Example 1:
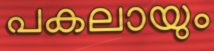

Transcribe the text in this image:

പകലായും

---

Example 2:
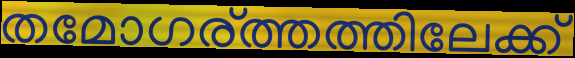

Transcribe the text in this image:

തമോഗര്ത്തത്തിലേക്ക്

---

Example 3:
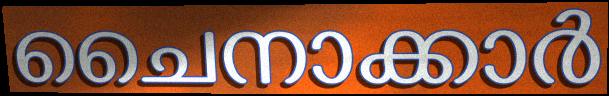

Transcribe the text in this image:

ചൈനാക്കാർ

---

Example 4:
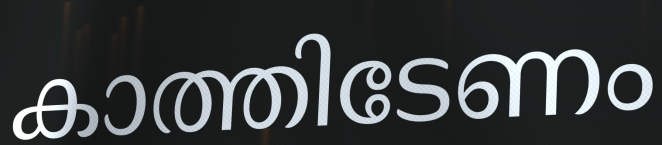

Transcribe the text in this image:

കാത്തിടേണം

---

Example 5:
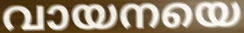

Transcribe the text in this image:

വായനയെ